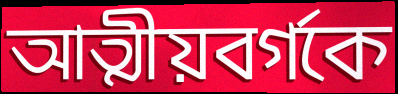
আত্মীয়বর্গকে